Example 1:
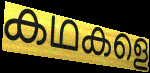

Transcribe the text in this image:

കഥകളെ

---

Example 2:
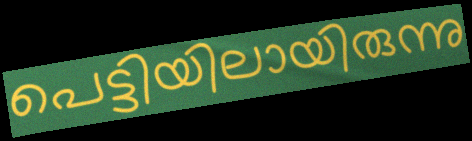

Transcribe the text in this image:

പെട്ടിയിലായിരുന്നു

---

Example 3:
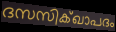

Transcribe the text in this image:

ദസസിക്ഖാപദം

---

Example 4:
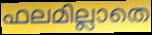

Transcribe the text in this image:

ഫലമില്ലാതെ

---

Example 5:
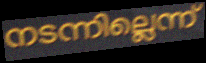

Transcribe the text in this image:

നടന്നില്ലെന്ന്